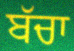
ਬੱਚਾ